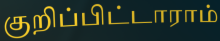
குறிப்பிட்டாராம்